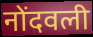
नोंदवली